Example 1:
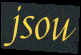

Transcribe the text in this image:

jsou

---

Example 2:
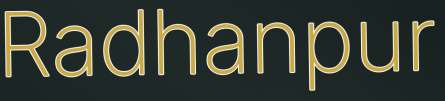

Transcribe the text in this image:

Radhanpur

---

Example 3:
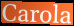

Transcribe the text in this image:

Carola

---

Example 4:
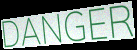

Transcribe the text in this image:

DANGER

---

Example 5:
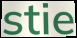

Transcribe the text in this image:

stie